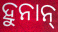
ହୁନାନ୍